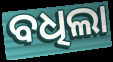
ବଧିଲା